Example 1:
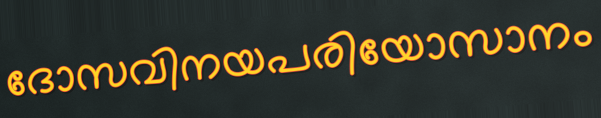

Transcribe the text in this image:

ദോസവിനയപരിയോസാനം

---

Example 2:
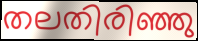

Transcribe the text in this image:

തലതിരിഞ്ഞു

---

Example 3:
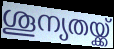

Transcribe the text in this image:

ശൂന്യതയ്ക്ക്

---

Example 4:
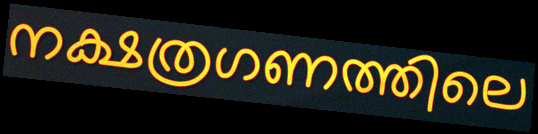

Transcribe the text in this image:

നക്ഷത്രഗണത്തിലെ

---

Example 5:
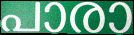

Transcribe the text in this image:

പാരാ